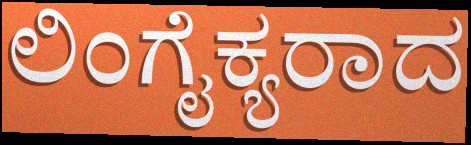
ಲಿಂಗೈಕ್ಯರಾದ